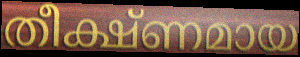
തീക്ഷ്ണമായ